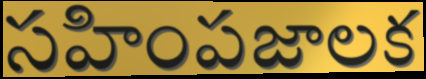
సహింపజాలక